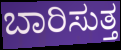
ಬಾರಿಸುತ್ತ